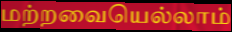
மற்றவையெல்லாம்